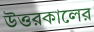
উত্তরকালের